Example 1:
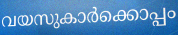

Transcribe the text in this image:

വയസുകാർക്കൊപ്പം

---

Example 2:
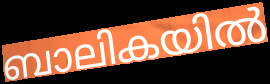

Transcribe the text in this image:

ബാലികയിൽ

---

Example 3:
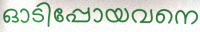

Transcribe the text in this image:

ഓടിപ്പോയവനെ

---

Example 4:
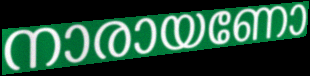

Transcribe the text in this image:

നാരായണോ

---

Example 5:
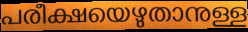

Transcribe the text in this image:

പരീക്ഷയെഴുതാനുള്ള